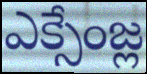
ఎక్సేంజ్ల